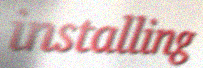
installing